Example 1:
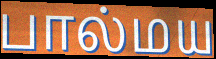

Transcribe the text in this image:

பால்மய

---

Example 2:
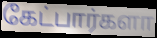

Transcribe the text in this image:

கேட்பார்களா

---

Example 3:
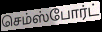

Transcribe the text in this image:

செம்ஸ்போர்ட்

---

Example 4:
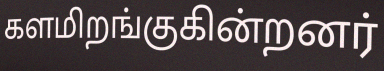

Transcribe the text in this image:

களமிறங்குகின்றனர்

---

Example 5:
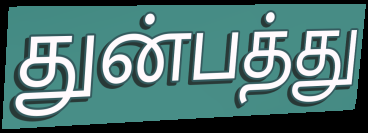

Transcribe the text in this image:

துன்பத்து